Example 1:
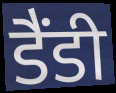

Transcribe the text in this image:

डैंडी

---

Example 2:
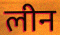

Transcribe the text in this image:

लीन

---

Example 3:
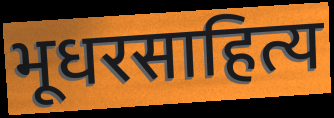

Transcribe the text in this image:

भूधरसाहित्य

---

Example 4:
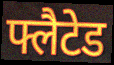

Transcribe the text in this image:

फ्लैटेड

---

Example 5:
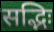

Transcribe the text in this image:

सद्भिः